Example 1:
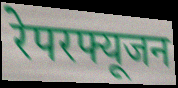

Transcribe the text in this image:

रेपरफ्यूजन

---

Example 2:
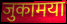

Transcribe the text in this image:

जुकामया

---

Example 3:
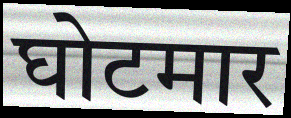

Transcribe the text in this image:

घोटमार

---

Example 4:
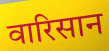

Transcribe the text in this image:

वारिसान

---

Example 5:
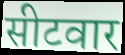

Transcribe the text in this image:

सीटवार